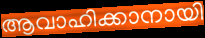
ആവാഹിക്കാനായി